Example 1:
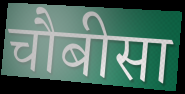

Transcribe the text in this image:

चौबीसा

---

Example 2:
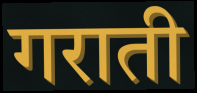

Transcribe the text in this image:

गराती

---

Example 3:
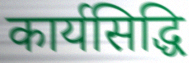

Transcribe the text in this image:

कार्यसिद्धि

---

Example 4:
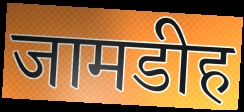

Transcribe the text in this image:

जामडीह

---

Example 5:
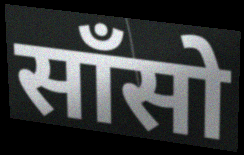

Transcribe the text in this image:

साँसो